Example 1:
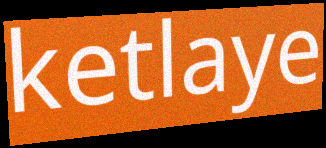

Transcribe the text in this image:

ketlaye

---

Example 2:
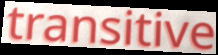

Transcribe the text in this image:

transitive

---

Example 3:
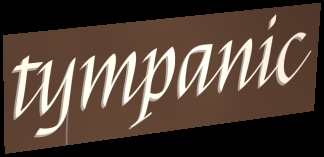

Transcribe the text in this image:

tympanic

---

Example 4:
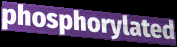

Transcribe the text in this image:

phosphorylated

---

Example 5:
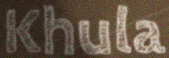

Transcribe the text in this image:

Khula